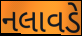
નલાવડે